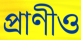
প্রাণীও